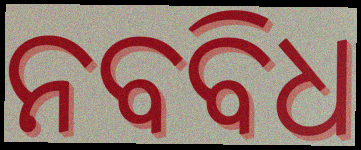
ନବବିଧ